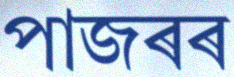
পাজৰৰ